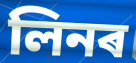
লিনৰ